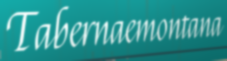
Tabernaemontana